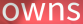
owns